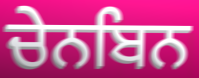
ਚੇਨਬਿਨ